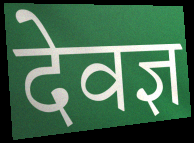
देवज्ञ